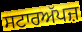
ਸਟਾਰਅੱਪਜ਼